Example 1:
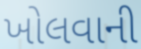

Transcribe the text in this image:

ખોલવાની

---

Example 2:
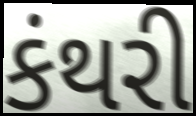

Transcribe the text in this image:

કંથરી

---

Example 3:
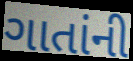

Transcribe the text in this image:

ગાતાંની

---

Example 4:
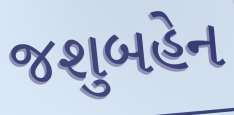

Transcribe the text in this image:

જશુબહેન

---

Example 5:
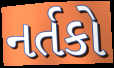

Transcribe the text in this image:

નર્તકો